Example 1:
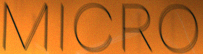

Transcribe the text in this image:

MICRO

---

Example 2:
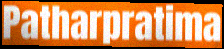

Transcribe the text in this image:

Patharpratima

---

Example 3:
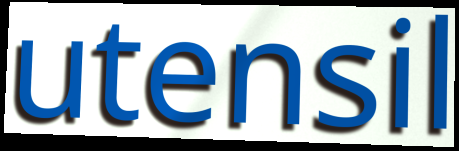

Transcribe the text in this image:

utensil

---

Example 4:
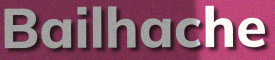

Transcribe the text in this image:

Bailhache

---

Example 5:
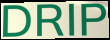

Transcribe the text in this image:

DRIP